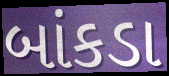
બાંકડા